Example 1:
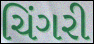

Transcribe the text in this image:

ચિંગરી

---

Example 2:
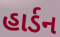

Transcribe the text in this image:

હાર્ડન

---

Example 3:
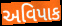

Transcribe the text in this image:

અવિપાક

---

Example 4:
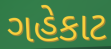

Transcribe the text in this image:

ગહેકાટ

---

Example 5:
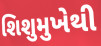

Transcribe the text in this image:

શિશુમુખેથી